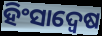
ହିଂସାଦ୍ୱେଷ